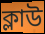
ক্লাউ